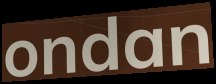
ondan